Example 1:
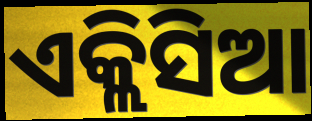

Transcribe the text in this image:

ଏକ୍ଲିସିଆ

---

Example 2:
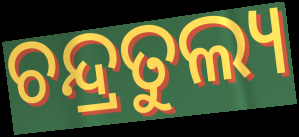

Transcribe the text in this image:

ଚନ୍ଦ୍ରତୁଲ୍ୟ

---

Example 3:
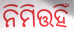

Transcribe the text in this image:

ନିମିତ୍ତହିଁ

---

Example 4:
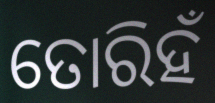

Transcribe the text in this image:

ତୋରିହଁ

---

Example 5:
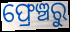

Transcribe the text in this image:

ଫ୍ରେଞ୍ଚରୁ